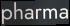
pharma